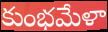
కుంభమేళా